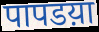
पापडय़ा